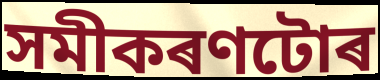
সমীকৰণটোৰ